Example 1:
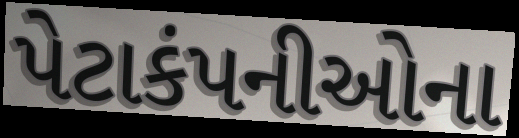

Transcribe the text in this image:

પેટાકંપનીઓના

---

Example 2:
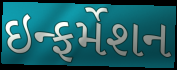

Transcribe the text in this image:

ઇન્ફર્મેશન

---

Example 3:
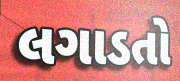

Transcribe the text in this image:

લગાડતો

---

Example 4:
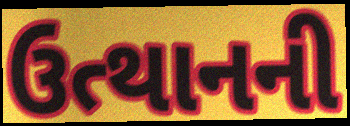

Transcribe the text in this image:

ઉત્થાનની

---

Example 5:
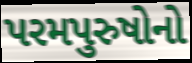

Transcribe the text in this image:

પરમપુરુષોનો